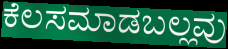
ಕೆಲಸಮಾಡಬಲ್ಲವು